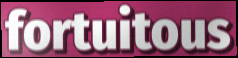
fortuitous